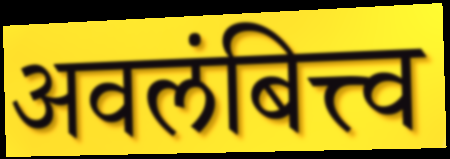
अवलंबित्त्व